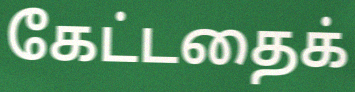
கேட்டதைக்